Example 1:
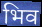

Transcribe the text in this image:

भिव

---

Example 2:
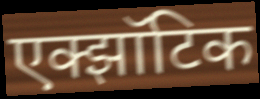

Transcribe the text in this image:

एक्झॉटिक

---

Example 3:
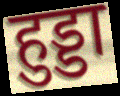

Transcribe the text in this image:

हुड्डा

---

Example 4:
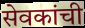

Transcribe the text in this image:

सेवकांची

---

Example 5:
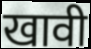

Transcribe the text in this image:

खावी